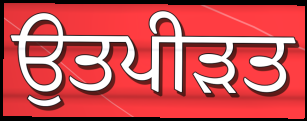
ਉਤਪੀੜਤ